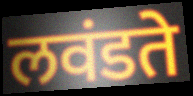
लवंडते